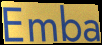
Emba